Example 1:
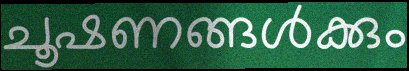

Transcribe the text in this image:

ചൂഷണങ്ങൾക്കും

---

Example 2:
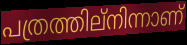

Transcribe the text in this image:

പത്രത്തില്നിന്നാണ്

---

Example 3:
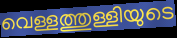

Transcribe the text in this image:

വെള്ളത്തുള്ളിയുടെ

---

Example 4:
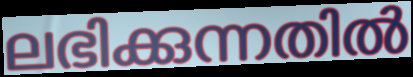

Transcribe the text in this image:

ലഭിക്കുന്നതിൽ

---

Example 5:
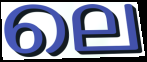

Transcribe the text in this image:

ലെ